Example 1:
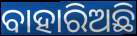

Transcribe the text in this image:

ବାହାରିଅଛି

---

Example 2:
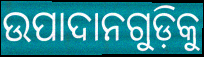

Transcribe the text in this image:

ଉପାଦାନଗୁଡ଼ିକୁ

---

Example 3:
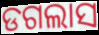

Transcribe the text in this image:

ଡଗଲାସ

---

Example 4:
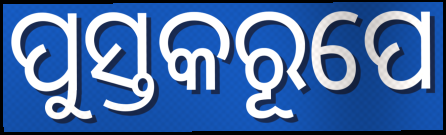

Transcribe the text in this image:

ପୁସ୍ତକରୂପେ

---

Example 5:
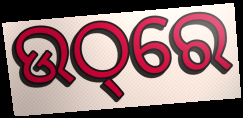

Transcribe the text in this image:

ଉଠ୍‌ରେ